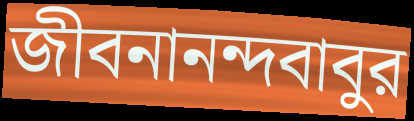
জীবনানন্দবাবুর